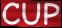
CUP